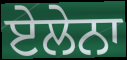
ਏਲੇਨਾ